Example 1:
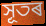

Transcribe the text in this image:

সূতৰ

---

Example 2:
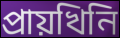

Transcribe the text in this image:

প্ৰায়খিনি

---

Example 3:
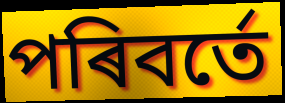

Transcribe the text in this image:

পৰিবৰ্তে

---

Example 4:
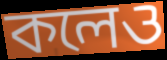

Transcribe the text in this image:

কলেও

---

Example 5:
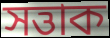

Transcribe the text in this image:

সত্তাক